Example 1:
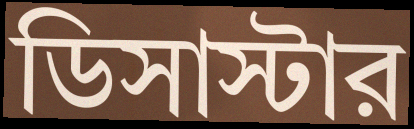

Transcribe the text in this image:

ডিসাস্টার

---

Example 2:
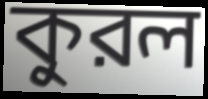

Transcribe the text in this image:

কুরল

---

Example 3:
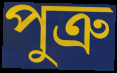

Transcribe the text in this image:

পুত্রু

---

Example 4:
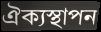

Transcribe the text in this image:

ঐক্যস্থাপন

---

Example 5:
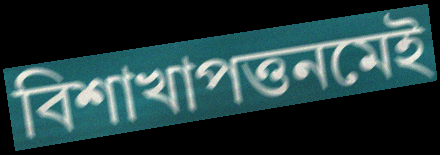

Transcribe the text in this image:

বিশাখাপত্তনমেই